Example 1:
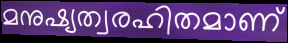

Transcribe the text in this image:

മനുഷ്യത്വരഹിതമാണ്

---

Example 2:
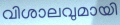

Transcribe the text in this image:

വിശാലവുമായി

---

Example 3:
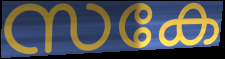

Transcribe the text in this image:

സകേ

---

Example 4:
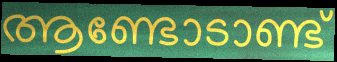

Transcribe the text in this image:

ആണ്ടോടാണ്ട്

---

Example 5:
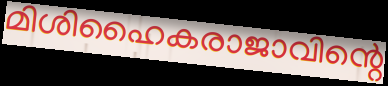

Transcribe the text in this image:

മിശിഹൈകരാജാവിന്റെ